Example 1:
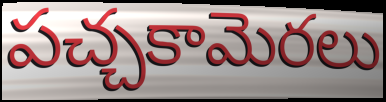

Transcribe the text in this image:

పచ్చకామెరలు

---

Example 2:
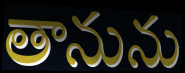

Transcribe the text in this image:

తానును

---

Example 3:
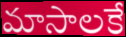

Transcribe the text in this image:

మాసాలకే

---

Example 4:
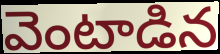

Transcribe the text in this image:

వెంటాడిన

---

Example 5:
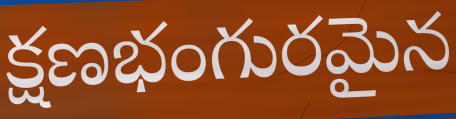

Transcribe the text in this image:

క్షణభంగురమైన